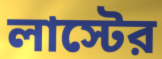
লাস্টের